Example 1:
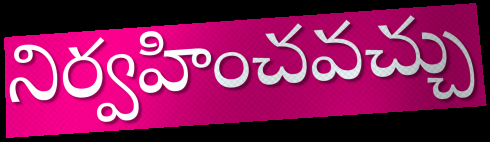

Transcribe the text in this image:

నిర్వహించవచ్చు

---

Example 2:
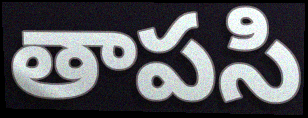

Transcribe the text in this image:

తాపసి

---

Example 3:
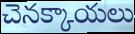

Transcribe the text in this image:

చెనక్కాయలు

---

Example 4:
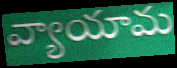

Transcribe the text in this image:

వ్యాయామ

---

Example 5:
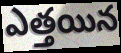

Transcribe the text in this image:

ఎత్తయిన